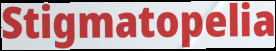
Stigmatopelia